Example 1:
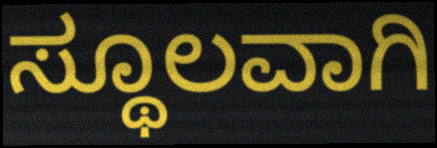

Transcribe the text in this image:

ಸ್ಥೂಲವಾಗಿ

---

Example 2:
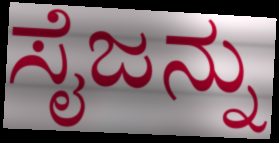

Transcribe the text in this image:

ಸೈಜನ್ನು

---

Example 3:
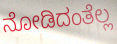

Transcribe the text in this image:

ನೋಡಿದಂತೆಲ್ಲ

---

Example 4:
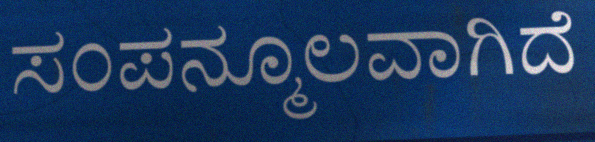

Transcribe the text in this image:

ಸಂಪನ್ಮೂಲವಾಗಿದೆ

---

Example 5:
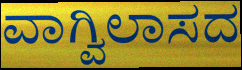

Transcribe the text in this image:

ವಾಗ್ವಿಲಾಸದ